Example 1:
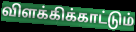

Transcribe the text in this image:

விளக்கிக்காட்டும்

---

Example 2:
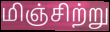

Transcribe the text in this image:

மிஞ்சிற்று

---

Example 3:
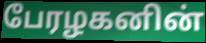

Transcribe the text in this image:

பேரழகனின்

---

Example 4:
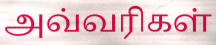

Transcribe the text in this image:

அவ்வரிகள்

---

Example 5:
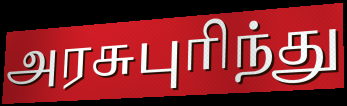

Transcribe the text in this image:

அரசுபுரிந்து